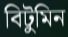
বিটুমিন